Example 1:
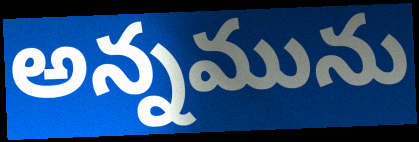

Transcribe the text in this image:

అన్నమును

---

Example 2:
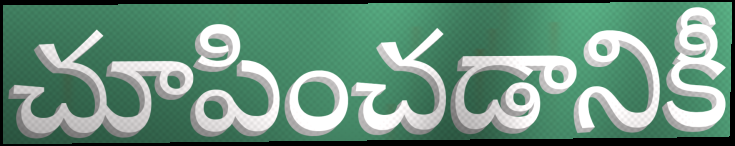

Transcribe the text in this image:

చూపించడానికీ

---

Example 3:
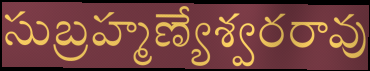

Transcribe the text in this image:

సుబ్రహ్మణ్యేశ్వరరావు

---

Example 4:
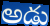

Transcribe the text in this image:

అడు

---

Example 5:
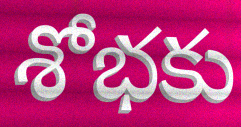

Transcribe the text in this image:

శోభకు